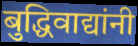
बुद्धिवाद्यांनी